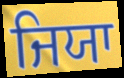
ਜਿਯਾ